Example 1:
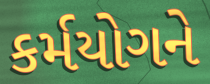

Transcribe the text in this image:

કર્મયોગને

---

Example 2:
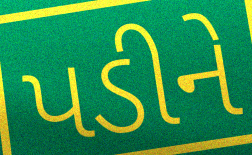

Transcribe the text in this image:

પડીને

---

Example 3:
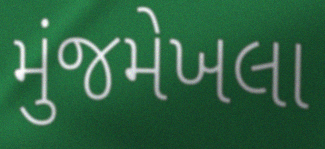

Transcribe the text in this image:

મુંજમેખલા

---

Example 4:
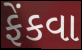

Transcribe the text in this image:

ફેંકવા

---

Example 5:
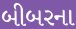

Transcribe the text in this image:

બીબરના